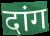
दांग